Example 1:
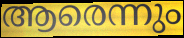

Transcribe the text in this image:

ആരെന്നും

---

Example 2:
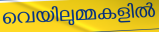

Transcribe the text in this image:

വെയിലുമ്മകളിൽ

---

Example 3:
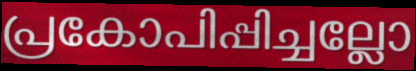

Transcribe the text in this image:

പ്രകോപിപ്പിച്ചല്ലോ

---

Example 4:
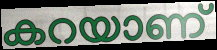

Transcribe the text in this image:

കറയാണ്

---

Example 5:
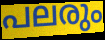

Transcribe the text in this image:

പലരും